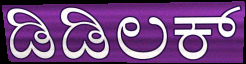
ಡಿಡಿಲಕ್